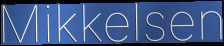
Mikkelsen